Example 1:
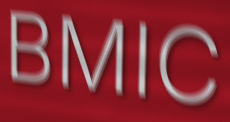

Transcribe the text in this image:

BMIC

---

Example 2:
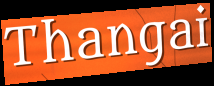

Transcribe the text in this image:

Thangai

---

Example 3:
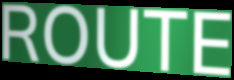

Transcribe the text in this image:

ROUTE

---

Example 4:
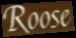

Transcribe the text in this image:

Roose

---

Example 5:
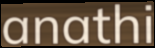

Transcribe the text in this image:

anathi